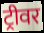
ट्रीवर